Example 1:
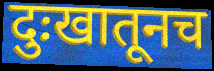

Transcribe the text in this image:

दुःखातूनच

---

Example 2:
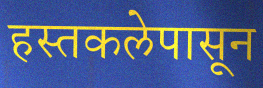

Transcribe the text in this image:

हस्तकलेपासून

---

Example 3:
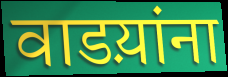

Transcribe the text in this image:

वाडय़ांना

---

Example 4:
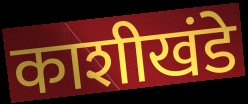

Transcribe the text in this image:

काशीखंडे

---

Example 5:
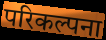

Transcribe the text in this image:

परिकल्पना